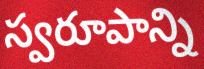
స్వరూపాన్ని